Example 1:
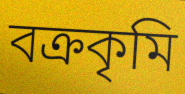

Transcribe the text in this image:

বক্রকৃমি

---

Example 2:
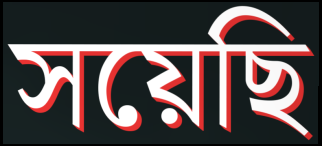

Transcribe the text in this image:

সয়েছি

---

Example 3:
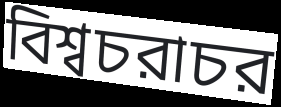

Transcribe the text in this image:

বিশ্বচরাচর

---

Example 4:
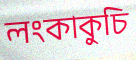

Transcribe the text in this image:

লংকাকুচি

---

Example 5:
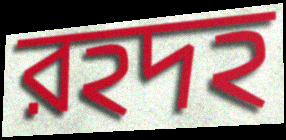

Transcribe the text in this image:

রহদহ